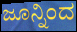
ಜೂನ್ನಿಂದ